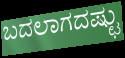
ಬದಲಾಗದಷ್ಟು